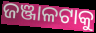
ଜଞ୍ଜାଳଟାକୁ